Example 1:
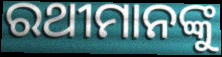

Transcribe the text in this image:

ରଥୀମାନଙ୍କୁ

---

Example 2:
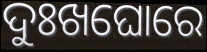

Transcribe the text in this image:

ଦୁଃଖଘୋରେ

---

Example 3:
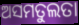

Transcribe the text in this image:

ଅସମତୁଲତା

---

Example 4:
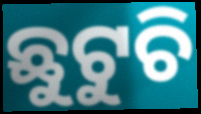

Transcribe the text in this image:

ଛୁଟୁଚି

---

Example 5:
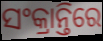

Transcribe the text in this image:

ସଂକ୍ରାନ୍ତିରେ